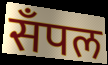
सँपल